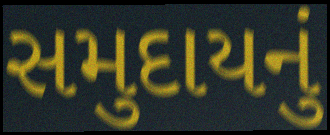
સમુદાયનું